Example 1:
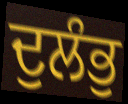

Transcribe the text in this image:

ਦੁਲੰਭੁ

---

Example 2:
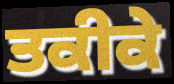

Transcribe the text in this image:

ਤਕੀਕੇ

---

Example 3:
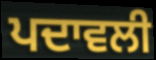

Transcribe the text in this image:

ਪਦਾਵਲੀ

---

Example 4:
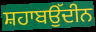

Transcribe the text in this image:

ਸ਼ਹਾਬਉੱਦੀਨ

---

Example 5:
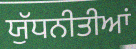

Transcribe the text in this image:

ਯੁੱਧਨੀਤੀਆਂ